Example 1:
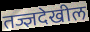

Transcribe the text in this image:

तज्ज्ञदेखील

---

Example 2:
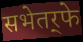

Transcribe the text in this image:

सभेतर्फे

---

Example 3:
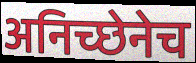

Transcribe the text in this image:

अनिच्छेनेच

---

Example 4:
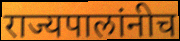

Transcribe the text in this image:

राज्यपालांनीच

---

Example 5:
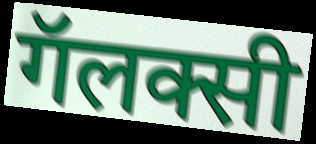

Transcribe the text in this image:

गॅलक्सी